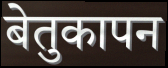
बेतुकापन